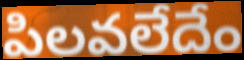
పిలవలేదేం